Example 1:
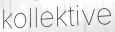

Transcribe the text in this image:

kollektive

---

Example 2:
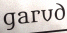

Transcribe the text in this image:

garud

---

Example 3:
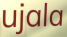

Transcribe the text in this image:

ujala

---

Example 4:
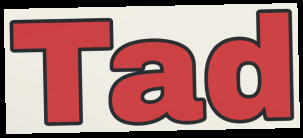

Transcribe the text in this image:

Tad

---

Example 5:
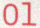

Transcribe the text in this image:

Ol